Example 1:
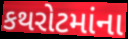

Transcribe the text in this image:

કથરોટમાંના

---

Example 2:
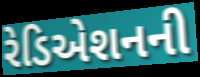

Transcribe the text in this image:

રેડિએશનની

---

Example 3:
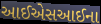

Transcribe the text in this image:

આઈએસઆઈના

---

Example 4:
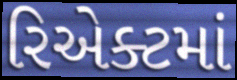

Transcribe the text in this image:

રિએક્ટમાં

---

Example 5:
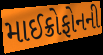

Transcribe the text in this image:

માઈક્રોફોનની